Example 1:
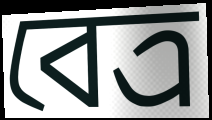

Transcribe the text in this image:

বেত্র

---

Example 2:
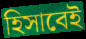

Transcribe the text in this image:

হিসাবেই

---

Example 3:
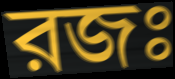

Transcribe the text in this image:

রজঃ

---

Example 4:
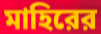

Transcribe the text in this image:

মাহিরের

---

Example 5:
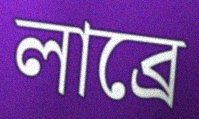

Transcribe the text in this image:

লাব্রে